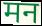
मन